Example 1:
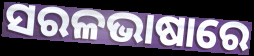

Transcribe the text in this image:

ସରଳଭାଷାରେ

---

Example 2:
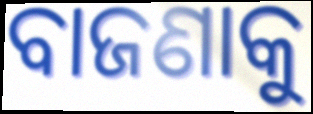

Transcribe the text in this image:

ବାଜଣାକୁ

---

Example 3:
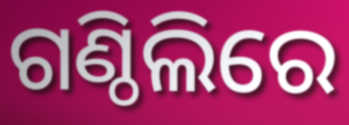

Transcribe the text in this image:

ଗଣ୍ଠିଲିରେ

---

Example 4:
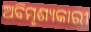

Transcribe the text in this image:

ଅବିମୃଶ୍ୟକାରୀ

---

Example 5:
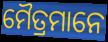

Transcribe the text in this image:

ମୈତ୍ରମାନେ